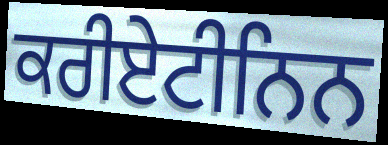
ਕਰੀਏਟੀਨਿਨ